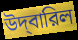
উদ্‌বারিল